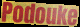
Podouke